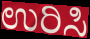
ಉರಿಸಿ